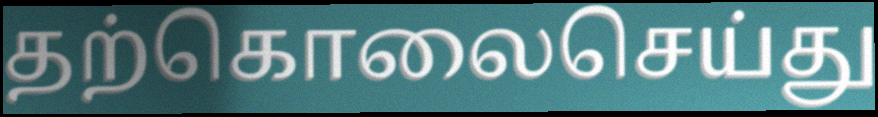
தற்கொலைசெய்து